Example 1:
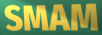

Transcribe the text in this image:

SMAM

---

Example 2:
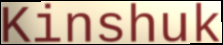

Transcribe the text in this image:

Kinshuk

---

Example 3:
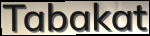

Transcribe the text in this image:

Tabakat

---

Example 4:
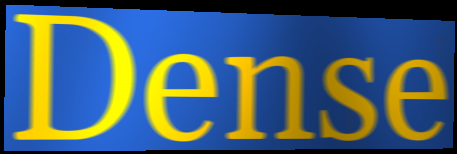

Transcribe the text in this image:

Dense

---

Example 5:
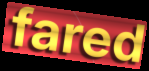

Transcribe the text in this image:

fared